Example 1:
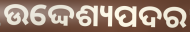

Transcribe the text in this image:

ଉଦ୍ଦେଶ୍ୟପଦର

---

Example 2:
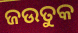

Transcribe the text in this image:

ଜଉତୁକ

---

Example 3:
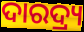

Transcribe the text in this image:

ଦାରଦ୍ର୍ୟ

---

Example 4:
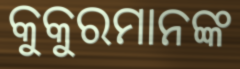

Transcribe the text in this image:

କୁକୁରମାନଙ୍କ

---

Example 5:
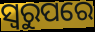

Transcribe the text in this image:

ସ୍ୱରୁପରେ